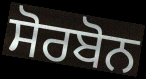
ਸੋਰਬੋਨ